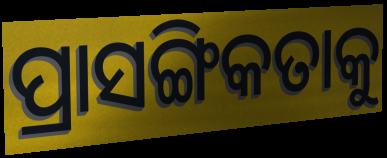
ପ୍ରାସଙ୍ଗିକତାକୁ